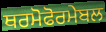
ਥਰਮੋਫੋਰਮੇਬਲ